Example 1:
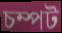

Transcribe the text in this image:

চম্পট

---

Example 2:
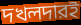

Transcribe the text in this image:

দখলদারই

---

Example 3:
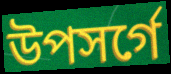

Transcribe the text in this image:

উপসর্গে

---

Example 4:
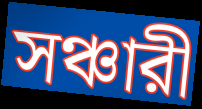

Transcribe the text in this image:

সঞ্চারী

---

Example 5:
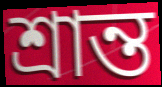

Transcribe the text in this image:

শ্রান্ত